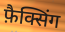
फ़ैक्सिंग